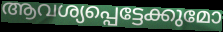
ആവശ്യപ്പെട്ടേക്കുമോ